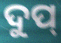
ଦୁପ୍